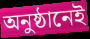
অনুষ্ঠানেই